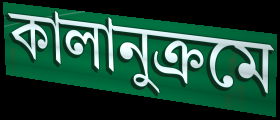
কালানুক্রমে